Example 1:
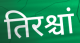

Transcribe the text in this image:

तिरश्चां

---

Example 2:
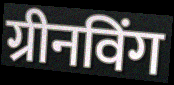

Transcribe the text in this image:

ग्रीनविंग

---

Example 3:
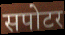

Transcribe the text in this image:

सपोटर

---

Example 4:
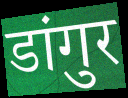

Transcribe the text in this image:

डांगुर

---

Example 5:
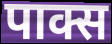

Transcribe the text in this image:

पाक्स